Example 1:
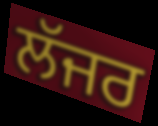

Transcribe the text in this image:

ਲੱਜਰ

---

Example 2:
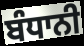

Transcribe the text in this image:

ਬੰਧਾਨੀ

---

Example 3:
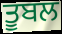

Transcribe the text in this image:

ਤੂਬਲ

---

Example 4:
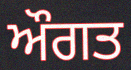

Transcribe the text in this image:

ਔਗਤ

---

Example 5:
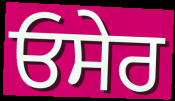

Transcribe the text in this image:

ਓਸੇਰ